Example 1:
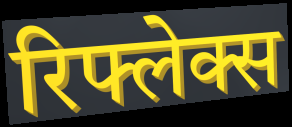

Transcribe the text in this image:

रिफ्लेक्स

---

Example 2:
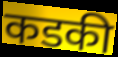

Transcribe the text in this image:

कडकी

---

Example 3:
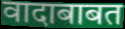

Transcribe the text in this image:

वादाबाबत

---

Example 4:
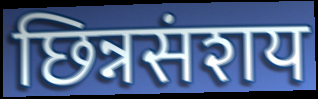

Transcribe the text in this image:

छिन्नसंशय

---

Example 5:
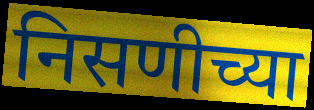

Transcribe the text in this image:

निसणीच्या